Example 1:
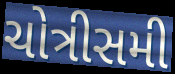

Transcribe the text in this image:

ચોત્રીસમી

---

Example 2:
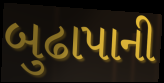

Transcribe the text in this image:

બુઢાપાની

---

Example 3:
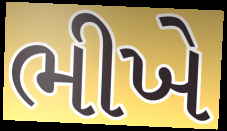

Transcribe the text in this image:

ભીખે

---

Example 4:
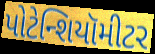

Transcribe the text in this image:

પોટેન્શિયૉમીટર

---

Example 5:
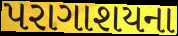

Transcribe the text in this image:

પરાગાશયના